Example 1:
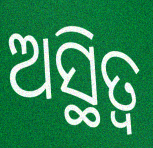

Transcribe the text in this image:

ଅସ୍ଥିତ୍ଵ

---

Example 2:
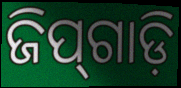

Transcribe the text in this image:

ଜିପ୍‍ଗାଡ଼ି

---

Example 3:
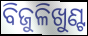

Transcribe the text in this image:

ବିଜୁଳିଖୁଣ୍ଟ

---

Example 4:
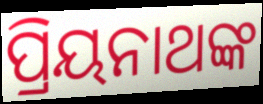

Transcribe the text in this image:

ପ୍ରିୟନାଥଙ୍କ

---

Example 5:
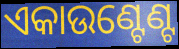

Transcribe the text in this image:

ଏକାଉଣ୍ଟେଣ୍ଟ